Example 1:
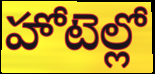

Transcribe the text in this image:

హోటెల్లో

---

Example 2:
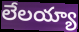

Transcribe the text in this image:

లేలయ్యా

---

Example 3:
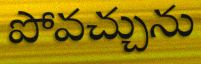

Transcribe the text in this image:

పోవచ్చును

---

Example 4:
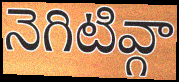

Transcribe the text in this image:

నెగిటివ్గా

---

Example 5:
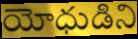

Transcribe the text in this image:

యోధుడిని